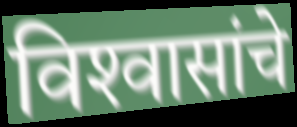
विश्‍वासांचे